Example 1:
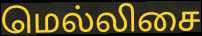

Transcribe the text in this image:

மெல்லிசை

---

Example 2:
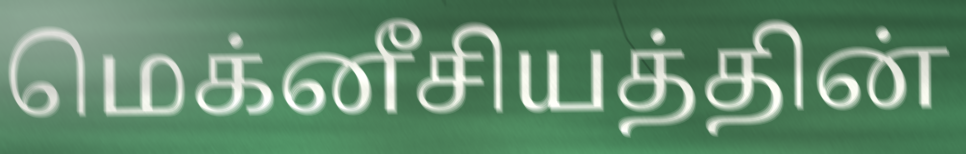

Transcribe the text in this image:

மெக்னீசியத்தின்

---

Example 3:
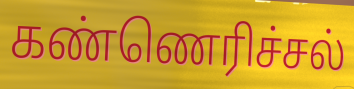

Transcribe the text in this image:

கண்ணெரிச்சல்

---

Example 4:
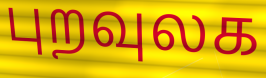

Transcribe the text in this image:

புறவுலக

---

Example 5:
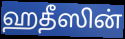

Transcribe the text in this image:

ஹதீஸின்